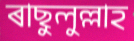
ৰাছুলুল্লাহ